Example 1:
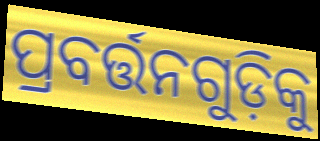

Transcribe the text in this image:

ପ୍ରବର୍ତ୍ତନଗୁଡ଼ିକୁ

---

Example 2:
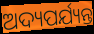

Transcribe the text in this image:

ଅଦ୍ୟପର୍ଯ୍ୟନ୍ତ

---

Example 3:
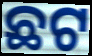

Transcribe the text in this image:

ଛଟ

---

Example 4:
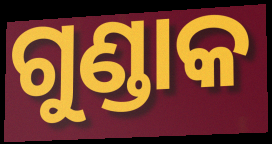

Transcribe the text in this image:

ଗୁଣ୍ଡାକ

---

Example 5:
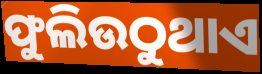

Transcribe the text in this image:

ଫୁଲିଉଠୁଥାଏ